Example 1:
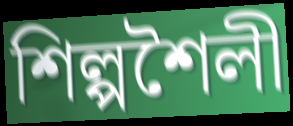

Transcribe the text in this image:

শিল্পশৈলী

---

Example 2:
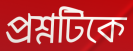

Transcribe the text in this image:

প্রশ্নটিকে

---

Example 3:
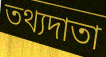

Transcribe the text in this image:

তথ্যদাতা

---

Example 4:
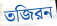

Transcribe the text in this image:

তজিরন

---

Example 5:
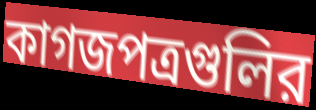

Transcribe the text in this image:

কাগজপত্রগুলির